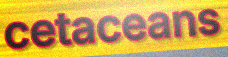
cetaceans